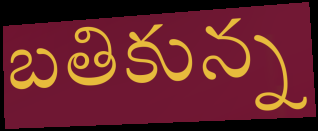
బతికున్న